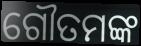
ଗୌତମଙ୍କ